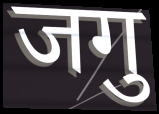
जगु